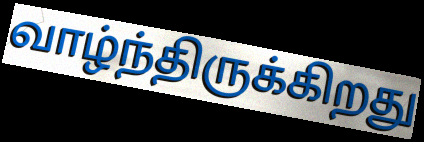
வாழ்ந்திருக்கிறது